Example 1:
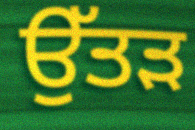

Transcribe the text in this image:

ਉੱਤੜ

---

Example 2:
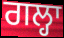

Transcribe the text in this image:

ਗਲ੍ਹ੍ਹਾ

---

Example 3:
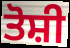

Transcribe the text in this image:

ਤੋਸ਼ੀ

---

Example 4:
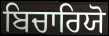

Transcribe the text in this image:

ਬਿਚਾਰਿਯੋ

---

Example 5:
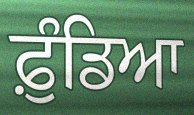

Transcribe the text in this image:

ਫ਼ੁੰਡਿਆ